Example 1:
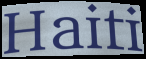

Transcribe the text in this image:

Haiti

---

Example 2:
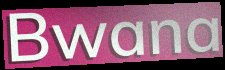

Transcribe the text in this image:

Bwana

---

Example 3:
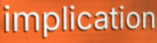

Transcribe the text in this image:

implication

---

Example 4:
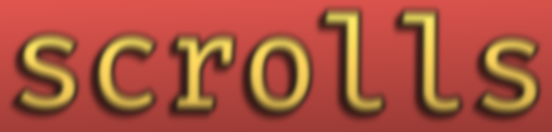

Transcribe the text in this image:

scrolls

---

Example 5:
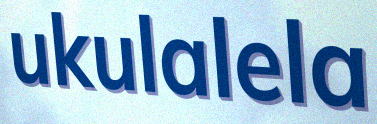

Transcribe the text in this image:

ukulalela